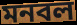
মনবল